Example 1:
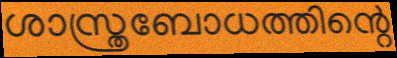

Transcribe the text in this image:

ശാസ്ത്രബോധത്തിന്റെ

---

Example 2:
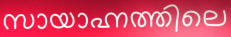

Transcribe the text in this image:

സായാഹ്നത്തിലെ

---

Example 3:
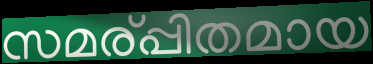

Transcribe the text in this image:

സമര്പ്പിതമായ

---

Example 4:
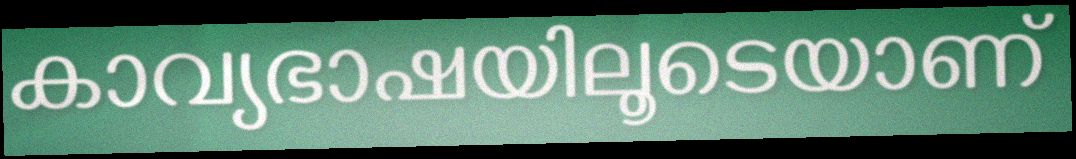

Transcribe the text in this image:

കാവ്യഭാഷയിലൂടെയാണ്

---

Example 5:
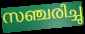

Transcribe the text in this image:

സഞ്ചരിച്ചു